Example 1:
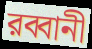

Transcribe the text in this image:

রব্বানী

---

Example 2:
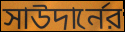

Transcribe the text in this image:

সাউদার্নের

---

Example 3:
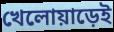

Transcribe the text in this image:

খেলোয়াড়েই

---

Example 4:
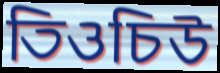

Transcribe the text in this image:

তিওচিউ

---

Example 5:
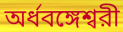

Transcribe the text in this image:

অর্ধবঙ্গেশ্বরী